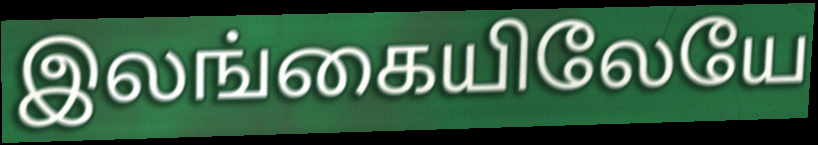
இலங்கையிலேயே